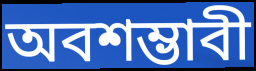
অবশম্ভাবী